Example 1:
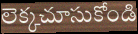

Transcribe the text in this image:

లెక్కచూసుకోండి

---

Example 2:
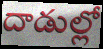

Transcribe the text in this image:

దాడుల్లో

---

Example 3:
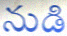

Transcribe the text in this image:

నుడి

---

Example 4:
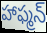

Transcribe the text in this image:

హాఫ్మన్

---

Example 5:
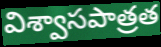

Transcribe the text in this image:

విశ్వాసపాత్రత